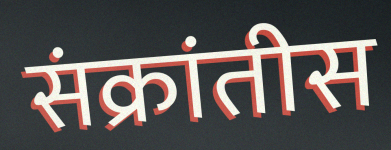
संक्रांतीस